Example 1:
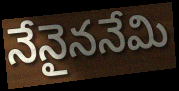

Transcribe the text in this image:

నేనైననేమి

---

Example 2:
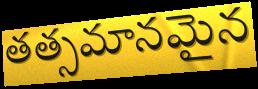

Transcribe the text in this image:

తత్సమానమైన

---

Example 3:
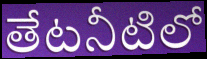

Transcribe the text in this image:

తేటనీటిలో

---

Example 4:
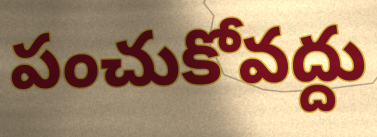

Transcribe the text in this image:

పంచుకోవద్దు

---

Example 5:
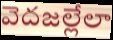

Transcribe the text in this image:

వెదజల్లేలా